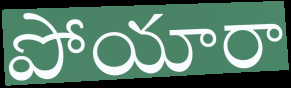
పోయారా